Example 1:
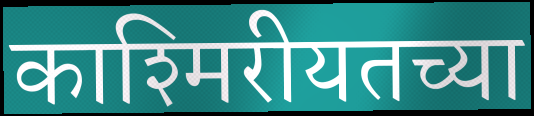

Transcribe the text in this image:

काश्मिरीयतच्या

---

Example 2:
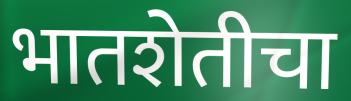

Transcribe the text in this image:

भातशेतीचा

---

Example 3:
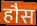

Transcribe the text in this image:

हौस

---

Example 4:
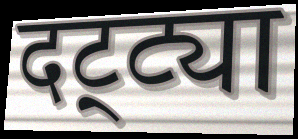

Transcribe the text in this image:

दट्ट्या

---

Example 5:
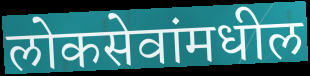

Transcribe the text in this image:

लोकसेवांमधील